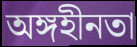
অঙ্গহীনতা